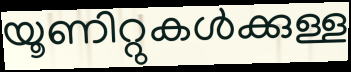
യൂണിറ്റുകൾക്കുള്ള